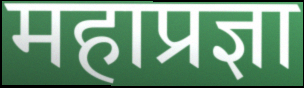
महाप्रज्ञा